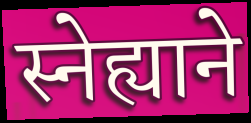
स्नेह्याने